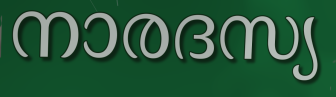
നാരദസ്യ